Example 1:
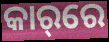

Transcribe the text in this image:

କାର୍‌ରେ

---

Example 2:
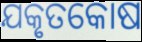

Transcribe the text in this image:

ଯକୃତକୋଷ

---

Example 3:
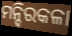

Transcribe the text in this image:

ମନ୍ଦିରକଳା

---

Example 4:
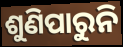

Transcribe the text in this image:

ଶୁଣିପାରୁନି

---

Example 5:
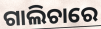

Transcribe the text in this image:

ଗାଲିଚାରେ